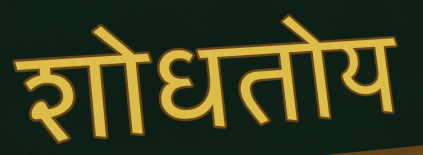
शोधतोय